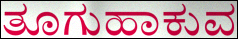
ತೂಗುಹಾಕುವ